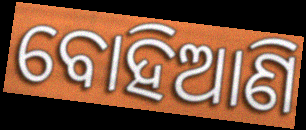
ବୋହିଆଣି